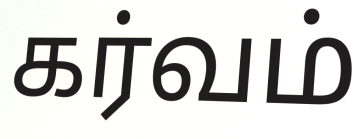
கர்வம்